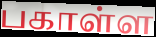
பகாள்ள